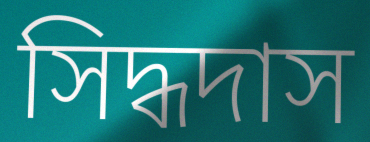
সিদ্ধদাস